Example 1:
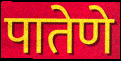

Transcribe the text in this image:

पातेणे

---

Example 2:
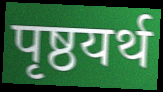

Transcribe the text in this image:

पृष्ठयर्थ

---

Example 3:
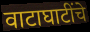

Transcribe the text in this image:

वाटाघाटींचे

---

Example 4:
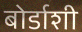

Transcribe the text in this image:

बोर्डाशी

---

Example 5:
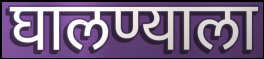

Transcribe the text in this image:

घालण्याला